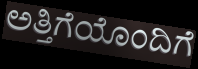
ಅತ್ತಿಗೆಯೊಂದಿಗೆ